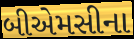
બીએમસીના